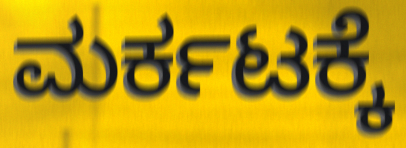
ಮರ್ಕಟಕ್ಕೆ